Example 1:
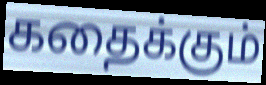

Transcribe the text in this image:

கதைக்கும்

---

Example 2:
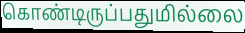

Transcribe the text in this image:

கொண்டிருப்பதுமில்லை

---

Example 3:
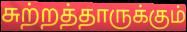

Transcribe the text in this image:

சுற்றத்தாருக்கும்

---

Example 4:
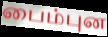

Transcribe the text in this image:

பைம்புன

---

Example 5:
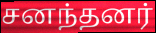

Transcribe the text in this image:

சனந்தனர்